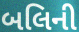
બલિની